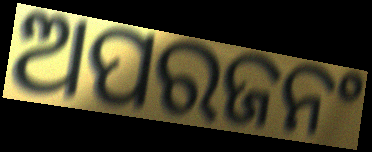
ଅପରଜନଂ